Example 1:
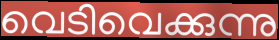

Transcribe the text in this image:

വെടിവെക്കുന്നു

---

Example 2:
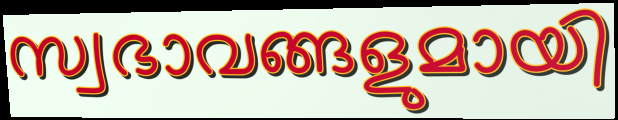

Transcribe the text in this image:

സ്വഭാവങ്ങളുമായി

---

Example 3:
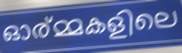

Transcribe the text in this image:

ഓര്മ്മകളിലെ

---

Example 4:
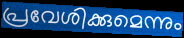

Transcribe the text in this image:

പ്രവേശിക്കുമെന്നും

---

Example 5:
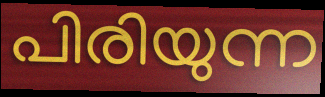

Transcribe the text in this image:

പിരിയുന്ന